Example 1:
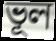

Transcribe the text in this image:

ভূল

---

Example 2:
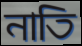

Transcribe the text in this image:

নাতি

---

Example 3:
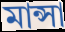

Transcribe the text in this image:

মান্সা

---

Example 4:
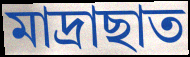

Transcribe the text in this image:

মাদ্ৰাছাত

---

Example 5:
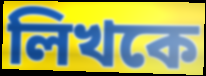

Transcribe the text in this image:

লিখকে